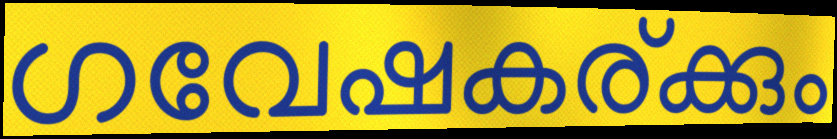
ഗവേഷകര്ക്കും